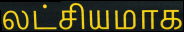
லட்சியமாக